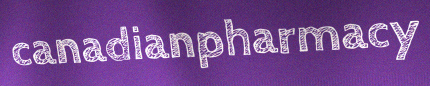
canadianpharmacy